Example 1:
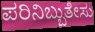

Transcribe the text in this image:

ಪರಿನಿಬ್ಬುತೇಸು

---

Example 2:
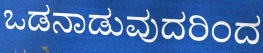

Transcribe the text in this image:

ಒಡನಾಡುವುದರಿಂದ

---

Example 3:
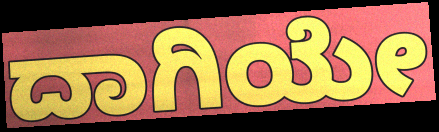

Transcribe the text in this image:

ದಾಗಿಯೇ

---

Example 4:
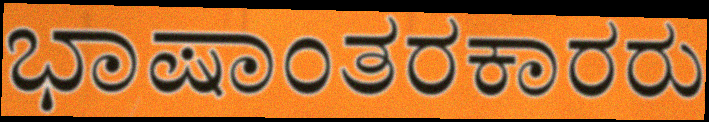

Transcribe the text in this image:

ಭಾಷಾಂತರಕಾರರು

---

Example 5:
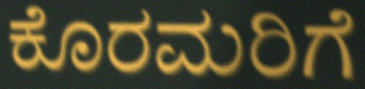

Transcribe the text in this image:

ಕೊರಮರಿಗೆ